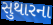
સુથારના